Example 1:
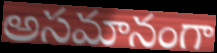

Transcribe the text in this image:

అసమానంగా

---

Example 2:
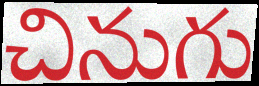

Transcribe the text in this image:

చినుగు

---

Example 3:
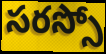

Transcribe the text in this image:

సరస్సో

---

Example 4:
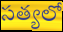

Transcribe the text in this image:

సత్యలో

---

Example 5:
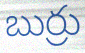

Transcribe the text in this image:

బుర్రు